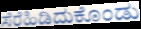
ಸೆರೆಹಿಡಿದುಕೊಂಡು